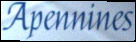
Apennines